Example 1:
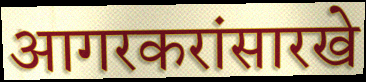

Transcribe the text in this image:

आगरकरांसारखे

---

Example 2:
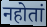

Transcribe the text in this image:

नहोतां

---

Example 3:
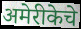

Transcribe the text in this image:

अमेरीकेचे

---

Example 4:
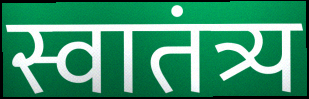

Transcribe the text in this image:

स्‍वातंत्र्य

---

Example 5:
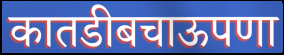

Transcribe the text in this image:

कातडीबचाऊपणा